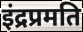
इंद्रप्रमति